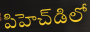
పిహెచ్‌డిలో